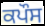
ਕਪੌਸ